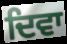
ਦਿਵਾ